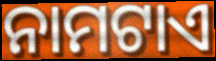
ନାମଟାଏ